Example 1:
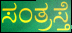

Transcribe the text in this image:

ಸಂತ್ರಸ್ತೆ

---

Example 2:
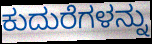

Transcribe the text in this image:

ಕುದುರೆಗಳನ್ನು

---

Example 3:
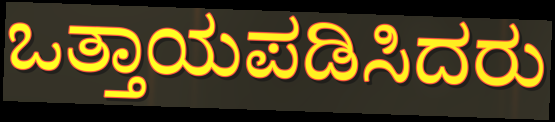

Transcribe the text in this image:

ಒತ್ತಾಯಪಡಿಸಿದರು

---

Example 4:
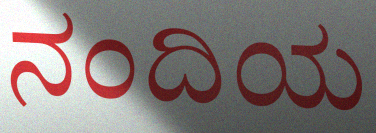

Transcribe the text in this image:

ನಂದಿಯ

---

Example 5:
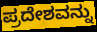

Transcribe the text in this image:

ಪ್ರದೇಶವನ್ನು